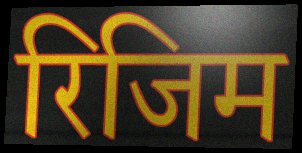
रिजिम